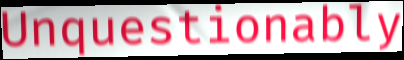
Unquestionably